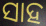
ସାହ